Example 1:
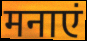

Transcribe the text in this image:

मनाएं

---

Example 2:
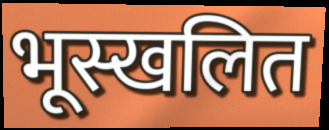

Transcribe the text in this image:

भूस्खलित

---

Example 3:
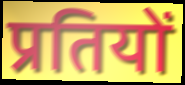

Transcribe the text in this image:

प्रतियों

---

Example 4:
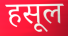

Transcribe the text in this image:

हसूल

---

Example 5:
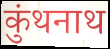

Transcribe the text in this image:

कुंथनाथ